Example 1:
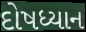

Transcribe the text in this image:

દોષધ્યાન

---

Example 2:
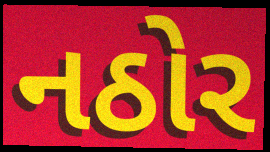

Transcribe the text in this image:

નઠોર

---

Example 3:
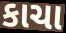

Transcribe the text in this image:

કાચા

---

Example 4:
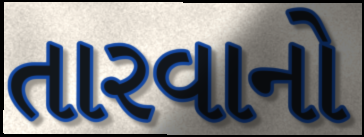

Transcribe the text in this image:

તારવાનો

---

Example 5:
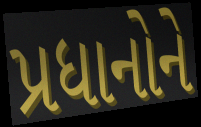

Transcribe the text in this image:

પ્રધાનોને